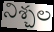
నిశ్చల